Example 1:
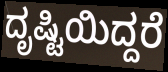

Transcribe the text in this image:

ದೃಷ್ಟಿಯಿದ್ದರೆ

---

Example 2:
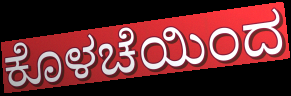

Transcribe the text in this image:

ಕೊಳಚೆಯಿಂದ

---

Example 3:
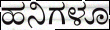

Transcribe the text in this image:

ಹನಿಗಳೂ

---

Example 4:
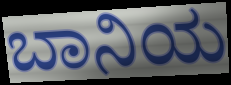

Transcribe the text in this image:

ಬಾನಿಯ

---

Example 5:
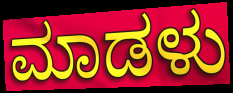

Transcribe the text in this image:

ಮಾಡಳು